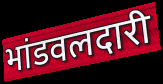
भांडवलदारी